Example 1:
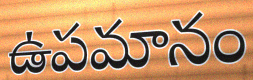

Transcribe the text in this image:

ఉపమానం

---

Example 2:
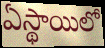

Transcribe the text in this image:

ఏస్థాయిలో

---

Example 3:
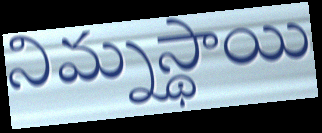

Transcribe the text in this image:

నిమ్నస్థాయి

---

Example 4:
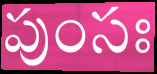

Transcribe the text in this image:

పుంసః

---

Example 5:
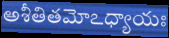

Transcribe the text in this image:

అశీతితమోఽధ్యాయః